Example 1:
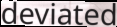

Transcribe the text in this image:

deviated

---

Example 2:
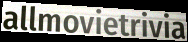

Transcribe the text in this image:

allmovietrivia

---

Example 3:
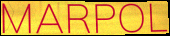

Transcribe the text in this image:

MARPOL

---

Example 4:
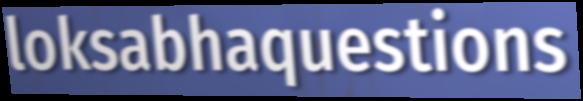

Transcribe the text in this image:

loksabhaquestions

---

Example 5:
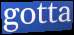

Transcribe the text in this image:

gotta